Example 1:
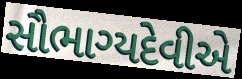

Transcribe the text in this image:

સૌભાગ્યદેવીએ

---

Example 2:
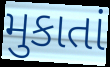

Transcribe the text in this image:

મુકાતાં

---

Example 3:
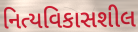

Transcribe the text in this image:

નિત્યવિકાસશીલ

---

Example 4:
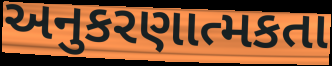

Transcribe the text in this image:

અનુકરણાત્મકતા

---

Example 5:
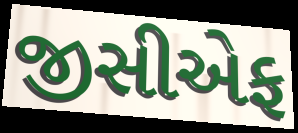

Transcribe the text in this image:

જીસીએફ